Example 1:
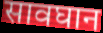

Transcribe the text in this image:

सावघान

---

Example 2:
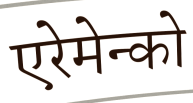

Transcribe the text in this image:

एरेमेन्को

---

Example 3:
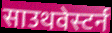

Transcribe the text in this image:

साउथवेस्टर्न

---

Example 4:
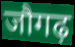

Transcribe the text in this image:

जौगढ़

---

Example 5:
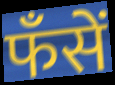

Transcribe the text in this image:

फँसें